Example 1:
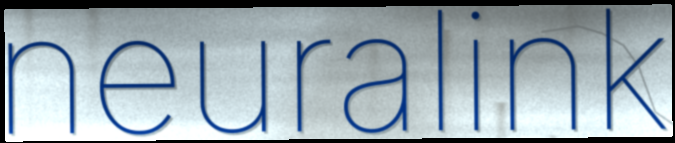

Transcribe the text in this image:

neuralink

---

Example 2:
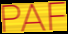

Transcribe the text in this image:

PAF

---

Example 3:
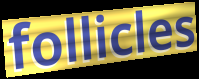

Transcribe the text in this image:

follicles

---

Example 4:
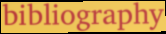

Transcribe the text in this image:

bibliography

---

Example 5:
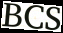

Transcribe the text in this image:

BCS